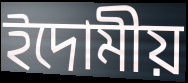
ইদোমীয়